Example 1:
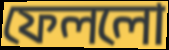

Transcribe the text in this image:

ফেললো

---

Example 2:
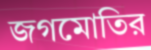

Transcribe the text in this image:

জগমোতির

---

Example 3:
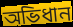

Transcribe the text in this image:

অভিধান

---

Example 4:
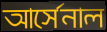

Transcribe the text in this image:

আর্সেনাল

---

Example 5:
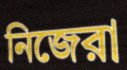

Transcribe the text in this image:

নিজেরা